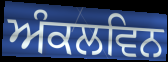
ਅੰਕਲਵਿਨ